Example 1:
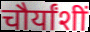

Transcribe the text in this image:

चौर्यांशीं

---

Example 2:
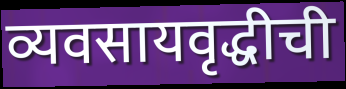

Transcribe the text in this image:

व्यवसायवृद्धीची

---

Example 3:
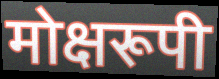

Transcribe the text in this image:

मोक्षरूपी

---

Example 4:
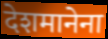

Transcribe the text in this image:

देशमानेना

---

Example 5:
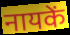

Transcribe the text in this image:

नायकें